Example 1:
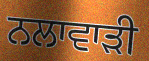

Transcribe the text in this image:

ਨਲਾਵਾੜੀ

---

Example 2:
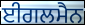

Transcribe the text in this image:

ਈਗਲਮੈਨ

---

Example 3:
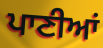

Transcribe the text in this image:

ਪਾਣੀਆਂ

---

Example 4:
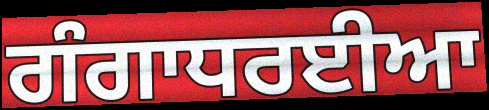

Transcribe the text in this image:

ਗੰਗਾਧਰਈਆ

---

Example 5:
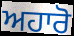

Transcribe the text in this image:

ਅਹਾਰੋ